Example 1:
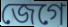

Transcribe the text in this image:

জেগে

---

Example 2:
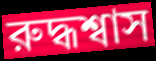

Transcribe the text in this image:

রুদ্ধশ্বাস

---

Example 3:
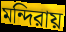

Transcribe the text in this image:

মন্দিরায়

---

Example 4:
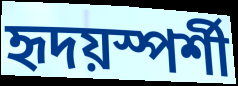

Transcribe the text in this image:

হৃদয়স্পর্শী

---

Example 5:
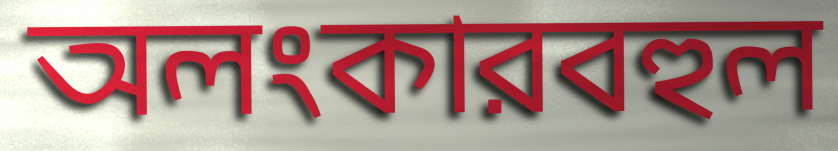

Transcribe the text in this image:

অলংকারবহুল